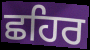
ਛਹਿਰ